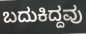
ಬದುಕಿದ್ದವು